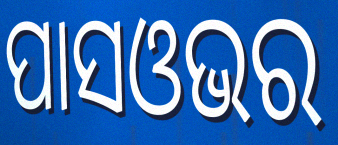
ପାସଓଭର